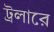
ট্রলারে